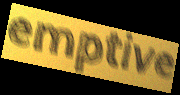
emptive